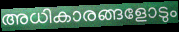
അധികാരങ്ങളോടും